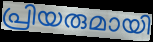
പ്രിയരുമായി